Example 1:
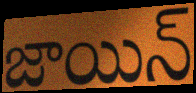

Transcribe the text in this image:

జాయిన్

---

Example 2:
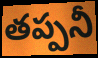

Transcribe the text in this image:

తప్పనీ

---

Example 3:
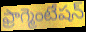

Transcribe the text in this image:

ఫ్రాగ్మెంటేషన్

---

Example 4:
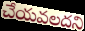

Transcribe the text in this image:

చేయవలదని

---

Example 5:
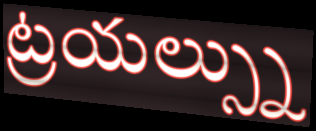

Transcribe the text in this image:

ట్రయల్స్ను